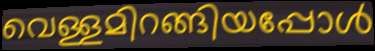
വെള്ളമിറങ്ങിയപ്പോൾ